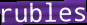
rubles